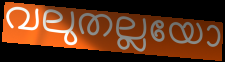
വലുതല്ലയോ